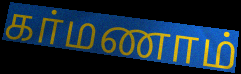
கர்மணாம்